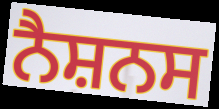
ਨੈਸ਼ਨਸ